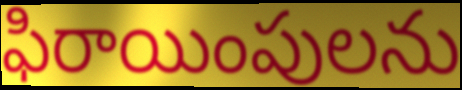
ఫిరాయింపులను